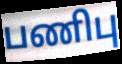
பணிபு